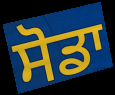
ਸੋਡਾ